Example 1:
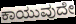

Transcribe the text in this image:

ಕಾಯುವುದೇ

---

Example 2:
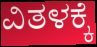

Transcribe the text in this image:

ವಿತಳಕ್ಕೆ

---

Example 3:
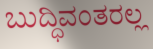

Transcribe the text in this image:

ಬುದ್ಧಿವಂತರಲ್ಲ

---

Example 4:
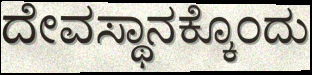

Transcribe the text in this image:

ದೇವಸ್ಥಾನಕ್ಕೊಂದು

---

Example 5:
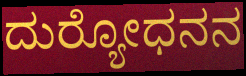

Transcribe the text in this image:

ದುರ‍್ಯೋಧನನ